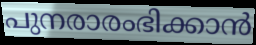
പുനരാരംഭിക്കാൻ